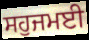
ਸਹੁਜਮਈ